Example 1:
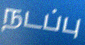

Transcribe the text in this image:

நடப்பு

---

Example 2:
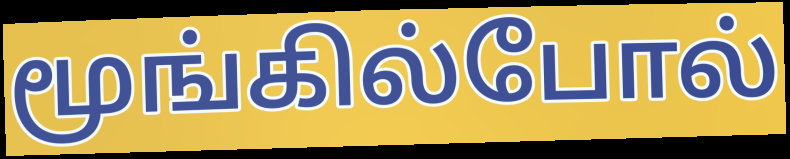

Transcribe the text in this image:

மூங்கில்போல்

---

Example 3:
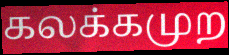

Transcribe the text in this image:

கலக்கமுற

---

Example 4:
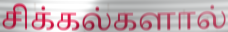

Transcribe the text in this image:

சிக்கல்களால்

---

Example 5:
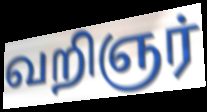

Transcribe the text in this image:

வறிஞர்